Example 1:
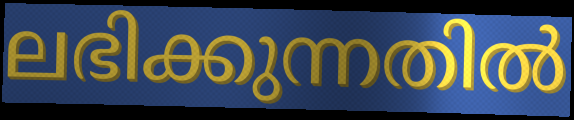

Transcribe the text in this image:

ലഭിക്കുന്നതിൽ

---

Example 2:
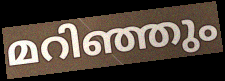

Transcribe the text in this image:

മറിഞ്ഞും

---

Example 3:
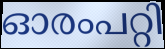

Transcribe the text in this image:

ഓരംപറ്റി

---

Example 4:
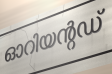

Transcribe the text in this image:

ഓറിയന്റഡ്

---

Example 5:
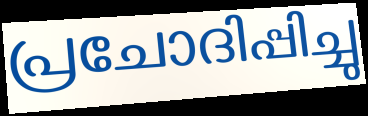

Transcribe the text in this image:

പ്രചോദിപ്പിച്ചു